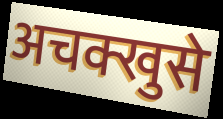
अचक्खुसे